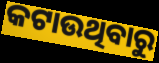
କଟାଉଥିବାରୁ